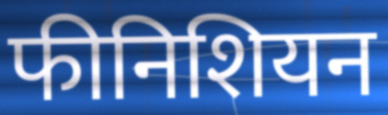
फीनिशियन